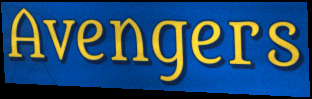
Avengers